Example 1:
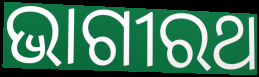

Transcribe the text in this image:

ଭାଗୀରଥ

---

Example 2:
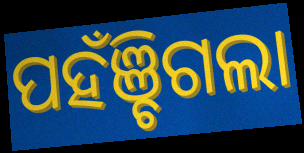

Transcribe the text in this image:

ପହଁଞ୍ଚିଗଲା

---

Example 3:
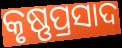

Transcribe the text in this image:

କୃଷ୍ଣପ୍ରସାଦ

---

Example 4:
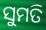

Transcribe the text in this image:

ସୁମତି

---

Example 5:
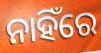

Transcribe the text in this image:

ନାହିଁରେ